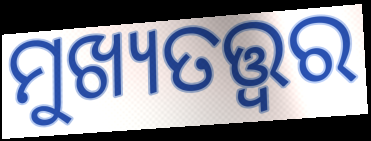
ମୁଖ୍ୟତତ୍ତ୍ୱର